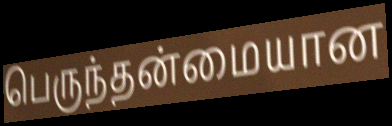
பெருந்தன்மையான